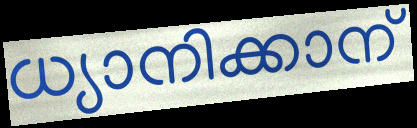
ധ്യാനിക്കാന്